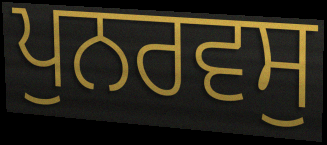
ਪੁਨਰਵਸੁ